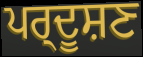
ਪਰ੍ਦੂਸ਼ਣ